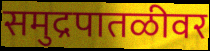
समुद्रपातळीवर